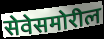
सेवेसमोरील